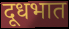
दूधभात